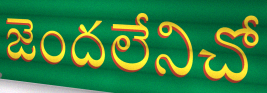
జెందలేనిచో